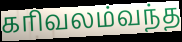
கரிவலம்வந்த